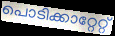
പൊടിക്കാറ്റേറ്റ്